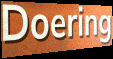
Doering